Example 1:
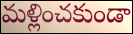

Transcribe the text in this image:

మళ్లించకుండా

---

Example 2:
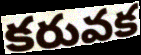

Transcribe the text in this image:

కరువక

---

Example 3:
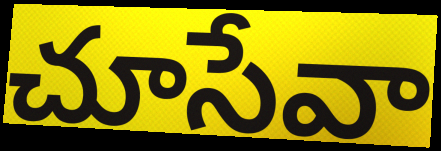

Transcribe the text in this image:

చూసేవా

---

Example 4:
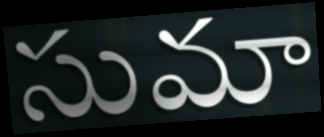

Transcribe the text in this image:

సుమా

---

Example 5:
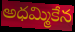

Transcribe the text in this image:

అధమ్మికేన